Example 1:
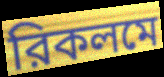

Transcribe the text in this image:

রিকলমে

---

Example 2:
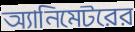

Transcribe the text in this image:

অ্যানিমেটরের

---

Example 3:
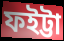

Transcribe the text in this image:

ফইট্টা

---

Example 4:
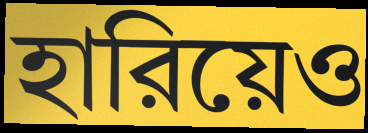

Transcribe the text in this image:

হারিয়েও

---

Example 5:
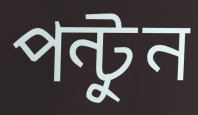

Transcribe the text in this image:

পন্টুন